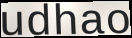
udhao